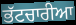
ਭੱਟਚਾਰੀਆ